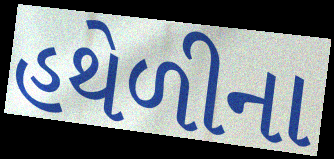
હથેળીના